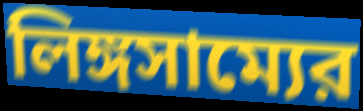
লিঙ্গসাম্যের